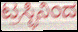
ಟ್ರಸ್ಟಿನಿಂದ